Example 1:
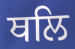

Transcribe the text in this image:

ਥਲਿ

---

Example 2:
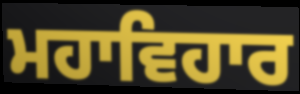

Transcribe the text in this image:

ਮਹਾਵਿਹਾਰ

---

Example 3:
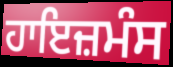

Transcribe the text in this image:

ਹਾਇਜ਼ਮੰਸ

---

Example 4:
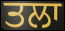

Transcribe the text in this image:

ਤਲਾ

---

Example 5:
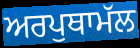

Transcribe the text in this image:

ਅਰਪੁਥਾਮੱਲ